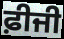
ਫ਼ੀਜੀ